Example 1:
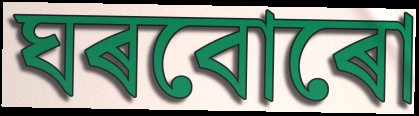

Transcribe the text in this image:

ঘৰবোৰো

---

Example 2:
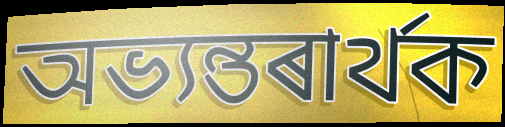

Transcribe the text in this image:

অভ্যন্তৰাৰ্থক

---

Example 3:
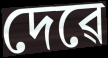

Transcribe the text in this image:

দেৱে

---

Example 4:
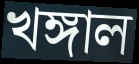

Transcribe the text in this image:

খঙ্গাল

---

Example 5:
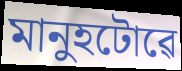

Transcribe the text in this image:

মানুহটোৱে